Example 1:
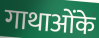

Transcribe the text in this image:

गाथाओंके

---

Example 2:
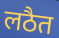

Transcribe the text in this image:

लठैत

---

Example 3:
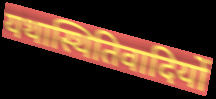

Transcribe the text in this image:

यथास्थितिवादियों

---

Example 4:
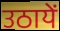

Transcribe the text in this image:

उठायें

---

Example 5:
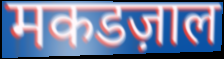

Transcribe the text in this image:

मकडज़ाल